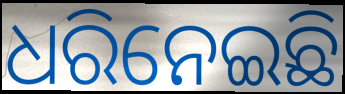
ଧରିନେଇଛି